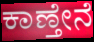
ಕಾಣ್ತೇನೆ